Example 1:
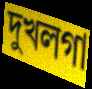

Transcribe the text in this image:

দুখলগা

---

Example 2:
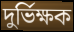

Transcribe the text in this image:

দুৰ্ভিক্ষক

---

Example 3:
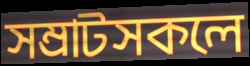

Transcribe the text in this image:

সম্ৰাটসকলে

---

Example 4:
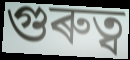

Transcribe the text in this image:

গুৰুত্ব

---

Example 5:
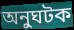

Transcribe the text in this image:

অনুঘটক